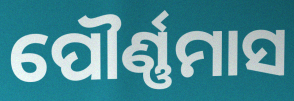
ପୌର୍ଣ୍ଣମାସ